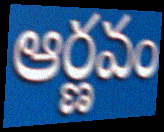
ఆర్ణవం